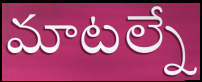
మాటల్నే